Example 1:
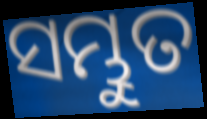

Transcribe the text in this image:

ସମ୍ଭୁତ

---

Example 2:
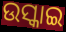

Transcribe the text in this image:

ଉସ୍କାଇ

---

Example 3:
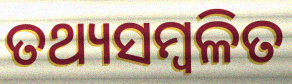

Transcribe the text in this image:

ତଥ୍ୟସମ୍ୱଳିତ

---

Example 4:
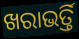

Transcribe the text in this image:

ଖରାଭର୍ତ୍ତି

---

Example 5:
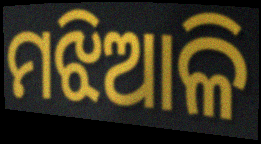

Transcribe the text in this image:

ମଝିଆଳି